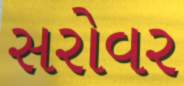
સરોવર